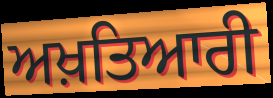
ਅਖ਼ਤਿਆਰੀ